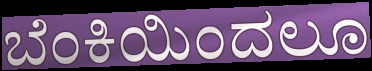
ಬೆಂಕಿಯಿಂದಲೂ